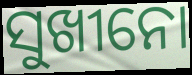
ସୁଖୀନୋ